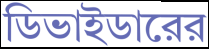
ডিভাইডারের